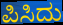
ಪಿಸಿದು